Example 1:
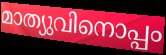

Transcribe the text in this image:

മാത്യുവിനൊപ്പം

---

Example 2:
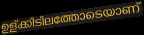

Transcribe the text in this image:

ഉള്ക്കിടിലത്തോടെയാണ്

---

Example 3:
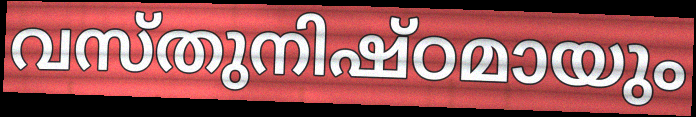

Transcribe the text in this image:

വസ്തുനിഷ്ഠമായും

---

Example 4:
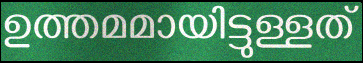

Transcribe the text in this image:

ഉത്തമമായിട്ടുള്ളത്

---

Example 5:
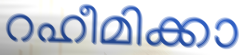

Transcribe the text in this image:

റഹീമിക്കാ